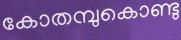
കോതമ്പുകൊണ്ടു